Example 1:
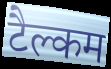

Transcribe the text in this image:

टैल्कम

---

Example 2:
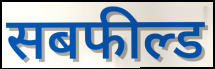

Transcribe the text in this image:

सबफील्ड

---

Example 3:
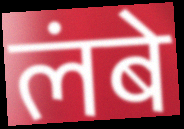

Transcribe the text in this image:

लंबे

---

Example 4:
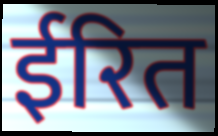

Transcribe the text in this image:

ईरित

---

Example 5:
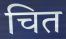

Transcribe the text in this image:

चित